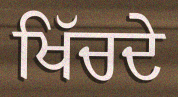
ਖਿੱਚਦੇ